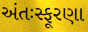
અંતઃસ્ફૂરણા